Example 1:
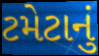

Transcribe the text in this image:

ટમેટાનું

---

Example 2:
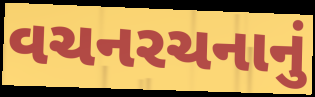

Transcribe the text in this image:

વચનરચનાનું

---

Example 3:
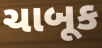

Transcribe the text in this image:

ચાબૂક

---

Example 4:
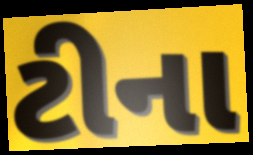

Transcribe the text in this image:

ટીના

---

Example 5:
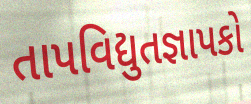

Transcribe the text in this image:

તાપવિદ્યુતજ્ઞાપકો